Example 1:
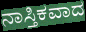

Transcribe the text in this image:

ನಾಸ್ತಿಕವಾದ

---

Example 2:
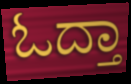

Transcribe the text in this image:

ಓದ್ತಾ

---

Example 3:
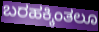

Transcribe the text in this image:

ಬರಹಕ್ಕಿಂತಲೂ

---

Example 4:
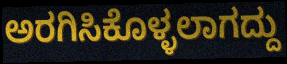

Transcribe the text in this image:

ಅರಗಿಸಿಕೊಳ್ಳಲಾಗದ್ದು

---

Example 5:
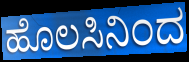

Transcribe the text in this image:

ಹೊಲಸಿನಿಂದ